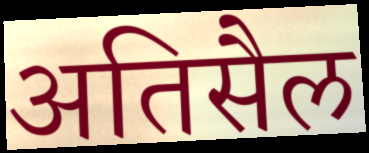
अतिसैल